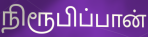
நிரூபிப்பான்